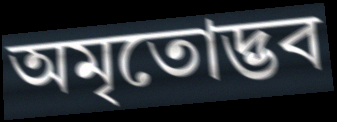
অমৃতোদ্ভব